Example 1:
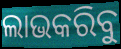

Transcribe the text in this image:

ଲାଭକରିବୁ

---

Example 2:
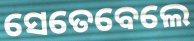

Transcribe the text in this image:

ସେତେବେଲେ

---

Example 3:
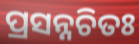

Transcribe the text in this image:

ପ୍ରସନ୍ନଚିତଃ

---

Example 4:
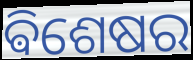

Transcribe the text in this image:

ଵିଶେଷର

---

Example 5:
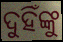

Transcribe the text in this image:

ଦୁହିଁଙ୍କୁ